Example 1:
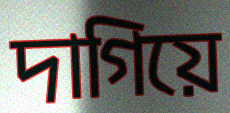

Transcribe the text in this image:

দাগিয়ে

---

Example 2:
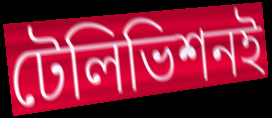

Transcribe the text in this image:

টেলিভিশনই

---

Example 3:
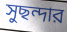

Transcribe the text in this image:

সুছন্দার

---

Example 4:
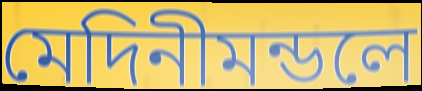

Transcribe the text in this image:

মেদিনীমন্ডলে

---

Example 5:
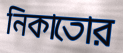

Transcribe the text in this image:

নিকাতোর